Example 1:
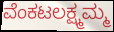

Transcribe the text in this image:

ವೆಂಕಟಲಕ್ಷ್ಮಮ್ಮ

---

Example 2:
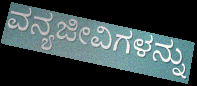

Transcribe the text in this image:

ವನ್ಯಜೀವಿಗಳನ್ನು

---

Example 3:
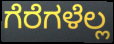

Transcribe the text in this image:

ಗೆರೆಗಳೆಲ್ಲ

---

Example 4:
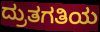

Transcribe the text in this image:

ದ್ರುತಗತಿಯ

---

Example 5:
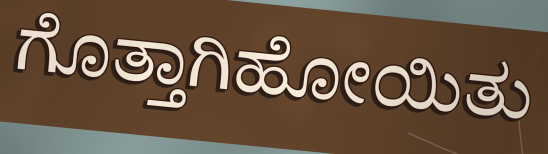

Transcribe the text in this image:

ಗೊತ್ತಾಗಿಹೋಯಿತು